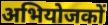
अभियोजकों